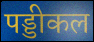
पड्डीकल